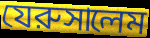
যেরুসালেম